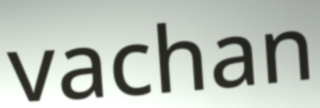
vachan